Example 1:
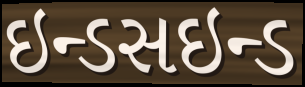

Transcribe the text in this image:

ઇન્ડસઇન્ડ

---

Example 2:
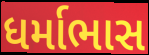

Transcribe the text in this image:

ધર્માભાસ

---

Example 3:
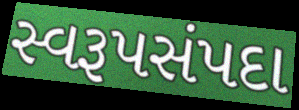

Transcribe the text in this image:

સ્વરૂપસંપદા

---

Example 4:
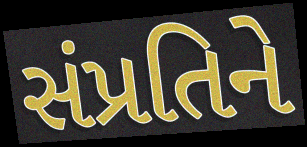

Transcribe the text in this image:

સંપ્રતિને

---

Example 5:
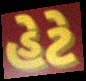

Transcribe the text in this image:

હેટે